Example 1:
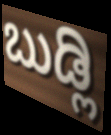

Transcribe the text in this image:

ಬುಡ್ಲಿ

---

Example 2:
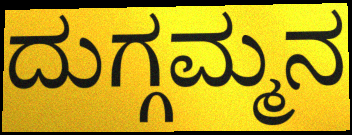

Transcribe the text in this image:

ದುಗ್ಗಮ್ಮನ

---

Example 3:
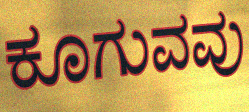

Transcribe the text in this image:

ಕೂಗುವವು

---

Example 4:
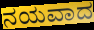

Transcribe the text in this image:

ನಯವಾದ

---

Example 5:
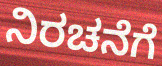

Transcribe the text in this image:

ನಿರಚನೆಗೆ